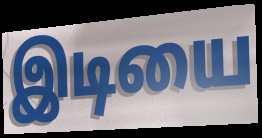
இடியை